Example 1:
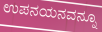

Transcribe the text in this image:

ಉಪನಯನವನ್ನೂ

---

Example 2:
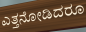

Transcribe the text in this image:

ಎತ್ತನೋಡಿದರೂ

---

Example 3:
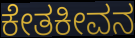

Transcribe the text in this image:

ಕೇತಕೀವನ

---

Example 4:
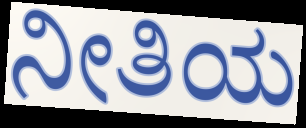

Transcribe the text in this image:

ನೀತಿಯ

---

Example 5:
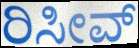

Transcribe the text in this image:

ರಿಸೀವ್